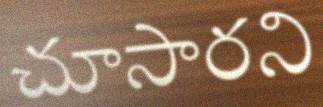
చూసారని